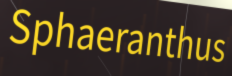
Sphaeranthus